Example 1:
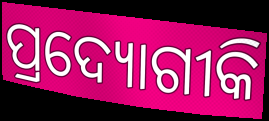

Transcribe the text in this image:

ପ୍ରଦ୍ୟୋଗୀକି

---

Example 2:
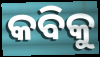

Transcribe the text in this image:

କବିକୁ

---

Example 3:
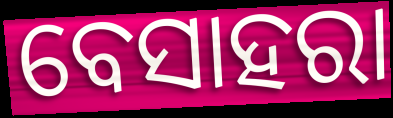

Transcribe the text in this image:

ବେସାହରା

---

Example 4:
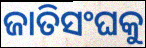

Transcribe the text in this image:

ଜାତିସଂଘକୁ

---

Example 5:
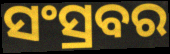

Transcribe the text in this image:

ସଂସ୍ରବର